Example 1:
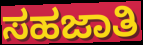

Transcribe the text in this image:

ಸಹಜಾತಿ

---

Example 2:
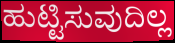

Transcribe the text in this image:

ಹುಟ್ಟಿಸುವುದಿಲ್ಲ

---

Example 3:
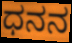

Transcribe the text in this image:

ಧನನ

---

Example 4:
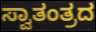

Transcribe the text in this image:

ಸ್ವಾತಂತ್ರದ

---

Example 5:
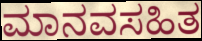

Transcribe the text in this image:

ಮಾನವಸಹಿತ